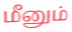
மீனும்